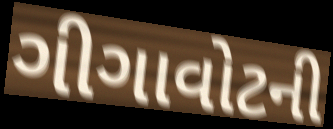
ગીગાવોટની